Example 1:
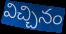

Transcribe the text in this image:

విచ్చినం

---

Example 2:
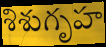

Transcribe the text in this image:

శిశుగృహ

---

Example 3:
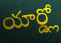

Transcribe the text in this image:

యార్డ్లో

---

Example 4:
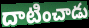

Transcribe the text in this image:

దాటించాడు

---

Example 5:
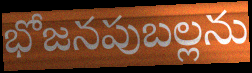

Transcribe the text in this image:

భోజనపుబల్లను